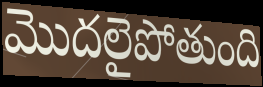
మొదలైపోతుంది